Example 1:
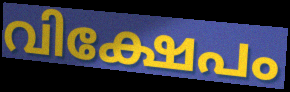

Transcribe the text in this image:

വിക്ഷേപം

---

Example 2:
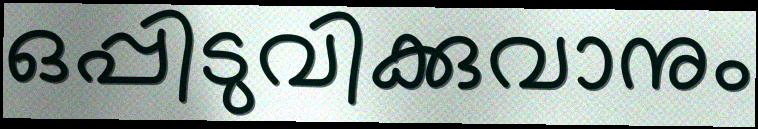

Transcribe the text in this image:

ഒപ്പിടുവിക്കുവാനും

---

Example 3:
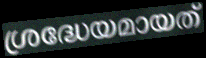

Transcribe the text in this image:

ശ്രദ്ധേയമായത്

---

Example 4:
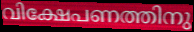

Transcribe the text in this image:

വിക്ഷേപണത്തിനു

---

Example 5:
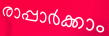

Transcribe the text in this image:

രാപ്പാർക്കാം